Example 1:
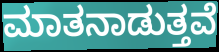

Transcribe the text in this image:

ಮಾತನಾಡುತ್ತವೆ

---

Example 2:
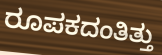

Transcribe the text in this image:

ರೂಪಕದಂತಿತ್ತು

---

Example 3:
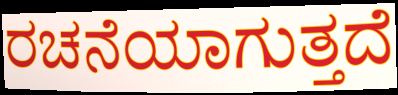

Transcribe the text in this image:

ರಚನೆಯಾಗುತ್ತದೆ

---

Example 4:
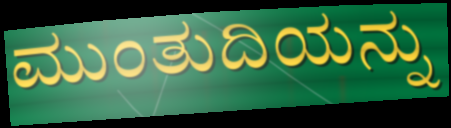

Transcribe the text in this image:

ಮುಂತುದಿಯನ್ನು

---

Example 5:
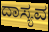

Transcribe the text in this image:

ದಾಸ್ಯವ